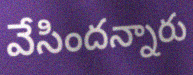
వేసిందన్నారు